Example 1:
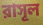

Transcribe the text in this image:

রাসূল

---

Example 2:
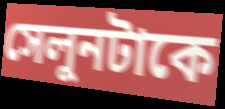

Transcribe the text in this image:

সেলুনটাকে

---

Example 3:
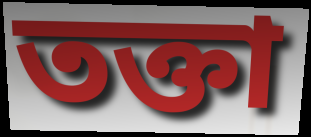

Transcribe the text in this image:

তক্তা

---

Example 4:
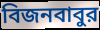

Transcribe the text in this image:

বিজনবাবুর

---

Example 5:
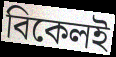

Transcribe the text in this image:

বিকেলই